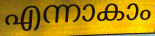
എന്നാകാം